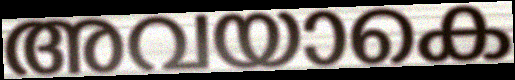
അവയാകെ